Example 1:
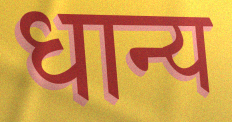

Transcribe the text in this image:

धान्य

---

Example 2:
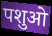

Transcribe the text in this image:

पशुओ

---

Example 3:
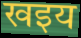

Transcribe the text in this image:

खइय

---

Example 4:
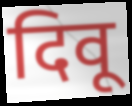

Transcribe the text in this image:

दिवू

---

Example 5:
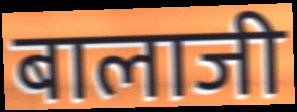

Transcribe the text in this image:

बालाजी